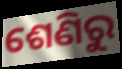
ଶେଣିରୁ